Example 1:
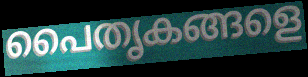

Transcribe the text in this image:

പൈതൃകങ്ങളെ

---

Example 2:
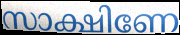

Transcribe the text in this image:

സാക്ഷിണേ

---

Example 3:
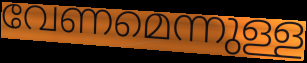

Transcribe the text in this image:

വേണമെന്നുള്ള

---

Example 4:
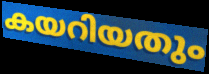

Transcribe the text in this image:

കയറിയതും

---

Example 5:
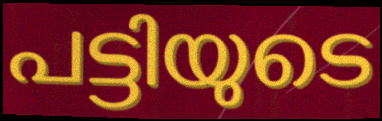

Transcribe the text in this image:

പട്ടിയുടെ